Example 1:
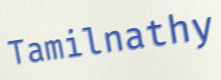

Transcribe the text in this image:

Tamilnathy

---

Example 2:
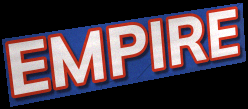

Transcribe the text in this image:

EMPIRE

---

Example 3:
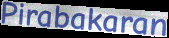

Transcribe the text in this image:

Pirabakaran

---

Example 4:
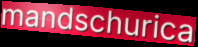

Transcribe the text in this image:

mandschurica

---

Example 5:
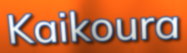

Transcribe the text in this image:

Kaikoura